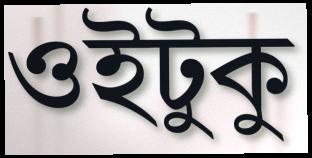
ওইটুকু